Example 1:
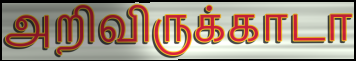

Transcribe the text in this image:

அறிவிருக்காடா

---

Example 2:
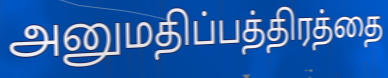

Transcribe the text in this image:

அனுமதிப்பத்திரத்தை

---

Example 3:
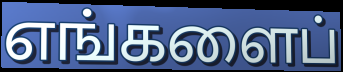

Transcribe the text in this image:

எங்களைப்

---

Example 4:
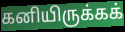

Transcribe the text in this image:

கனியிருக்கக்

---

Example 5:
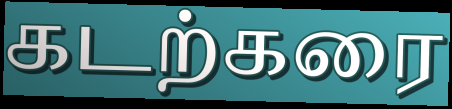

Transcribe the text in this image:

கடற்கரை